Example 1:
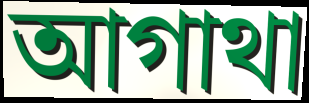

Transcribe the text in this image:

আগাথা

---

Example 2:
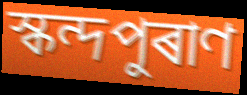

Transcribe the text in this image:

স্কন্দপুৰাণ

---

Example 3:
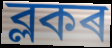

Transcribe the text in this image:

ব্লকৰ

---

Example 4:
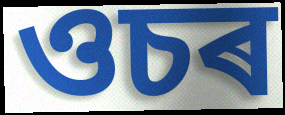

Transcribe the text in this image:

ওচৰ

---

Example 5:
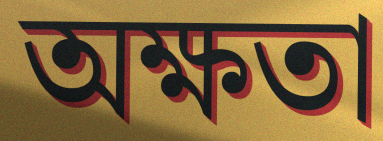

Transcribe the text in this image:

অক্ষতা